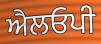
ਐਲਓਪੀ